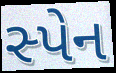
સ્પેન